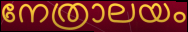
നേത്രാലയം